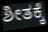
ಶೀತಕ್ಕೆ